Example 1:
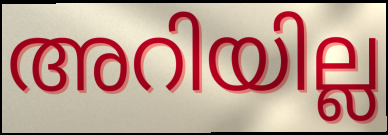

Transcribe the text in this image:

അറിയില്ല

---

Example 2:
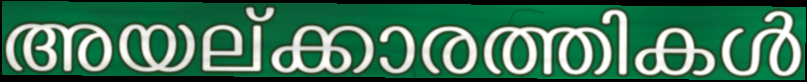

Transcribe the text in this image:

അയല്ക്കാരത്തികൾ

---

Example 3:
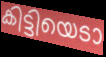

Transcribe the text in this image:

കിട്ടിയെടാ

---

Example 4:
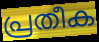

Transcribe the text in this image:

പ്രതീക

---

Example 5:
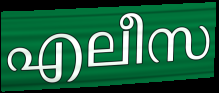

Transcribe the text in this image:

എലീസ